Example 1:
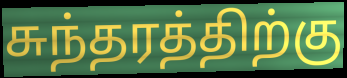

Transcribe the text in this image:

சுந்தரத்திற்கு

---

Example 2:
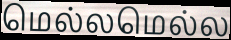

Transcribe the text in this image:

மெல்லமெல்ல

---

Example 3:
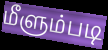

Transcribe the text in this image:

மீளும்படி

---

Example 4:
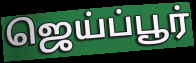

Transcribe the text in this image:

ஜெய்ப்பூர்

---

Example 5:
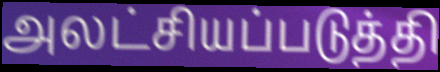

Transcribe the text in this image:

அலட்சியப்படுத்தி